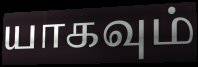
யாகவும்